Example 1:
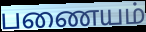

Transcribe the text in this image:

பணையம்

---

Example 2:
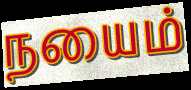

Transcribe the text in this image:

நயைம்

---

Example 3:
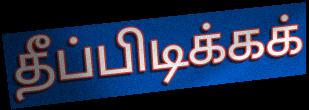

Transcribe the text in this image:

தீப்பிடிக்கக்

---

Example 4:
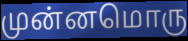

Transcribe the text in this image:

முன்னமொரு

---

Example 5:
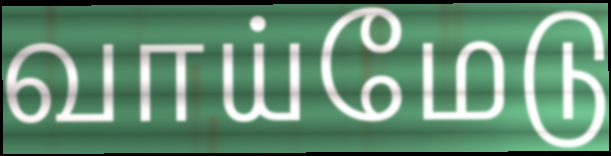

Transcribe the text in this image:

வாய்மேடு